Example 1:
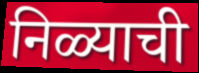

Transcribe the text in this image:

निळ्याची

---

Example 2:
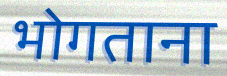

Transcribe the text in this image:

भोगताना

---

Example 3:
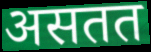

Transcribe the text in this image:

असतत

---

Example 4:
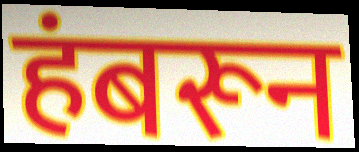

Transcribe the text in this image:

हंबरून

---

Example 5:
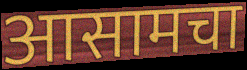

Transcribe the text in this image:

आसामचा